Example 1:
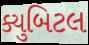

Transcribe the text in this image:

ક્યુબિટલ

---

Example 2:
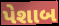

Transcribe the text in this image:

પેશાબ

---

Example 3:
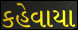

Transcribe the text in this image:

કહેવાયા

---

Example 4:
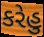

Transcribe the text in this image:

કરેહુ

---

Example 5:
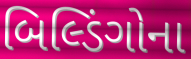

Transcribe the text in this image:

બિલ્ડિંગોના